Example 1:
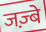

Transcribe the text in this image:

जज़्बे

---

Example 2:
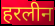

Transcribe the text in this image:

हरलीन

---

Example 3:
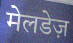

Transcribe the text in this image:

मेलडेज़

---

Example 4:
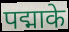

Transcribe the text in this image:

पद्माके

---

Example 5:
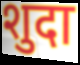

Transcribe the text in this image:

शुदा